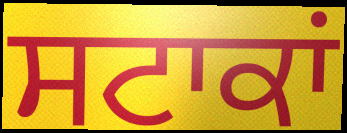
ਸਟਾਕਾਂ